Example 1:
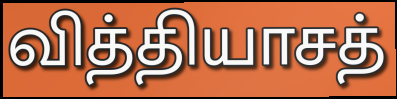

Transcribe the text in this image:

வித்தியாசத்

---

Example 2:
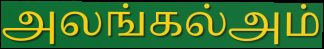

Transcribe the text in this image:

அலங்கல்அம்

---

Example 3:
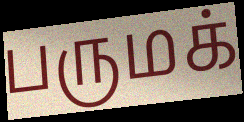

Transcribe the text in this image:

பருமக்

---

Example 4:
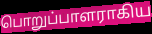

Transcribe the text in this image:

பொறுப்பாளராகிய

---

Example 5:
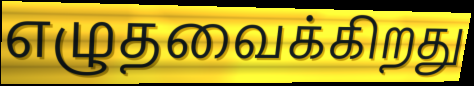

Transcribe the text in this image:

எழுதவைக்கிறது